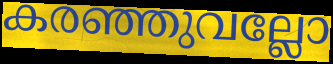
കരഞ്ഞുവല്ലോ